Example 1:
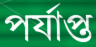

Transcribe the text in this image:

পর্যাপ্ত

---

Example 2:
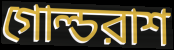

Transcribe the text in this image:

গোল্ডরাশ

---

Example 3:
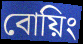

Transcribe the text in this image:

বোয়িং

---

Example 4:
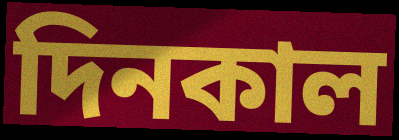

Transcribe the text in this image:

দিনকাল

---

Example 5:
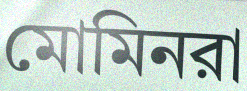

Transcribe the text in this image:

মোমিনরা